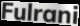
Fulrani